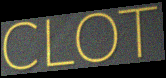
CLOT